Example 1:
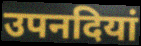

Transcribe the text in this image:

उपनदियां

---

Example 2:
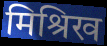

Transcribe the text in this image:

मिश्रिख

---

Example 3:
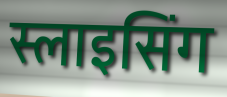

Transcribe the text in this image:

स्लाइसिंग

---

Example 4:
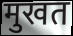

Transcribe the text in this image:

मुखत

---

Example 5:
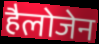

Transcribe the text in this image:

हैलोजेन